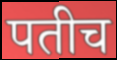
पतीच